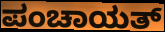
ಪಂಚಾಯತ್